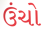
ઉંચો